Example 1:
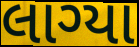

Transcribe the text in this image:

લાગ્યા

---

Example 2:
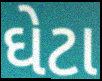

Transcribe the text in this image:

ઘેટા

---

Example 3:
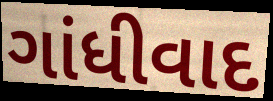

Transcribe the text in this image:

ગાંધીવાદ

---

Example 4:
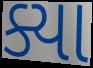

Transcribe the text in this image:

ક્યા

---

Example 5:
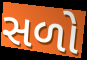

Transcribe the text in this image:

સળો